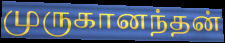
முருகானந்தன்